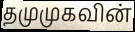
தமுமுகவின்